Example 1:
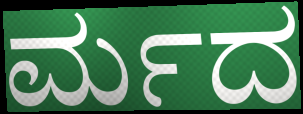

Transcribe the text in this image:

ರ್ಮದ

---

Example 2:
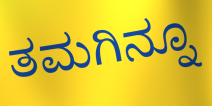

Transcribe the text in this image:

ತಮಗಿನ್ನೂ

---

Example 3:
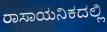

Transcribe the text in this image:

ರಾಸಾಯನಿಕದಲ್ಲಿ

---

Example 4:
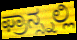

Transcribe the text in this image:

ಫ್ರಾನ್ಸ್ನಲ್ಲಿ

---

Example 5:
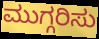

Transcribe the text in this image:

ಮುಗ್ಗರಿಸು